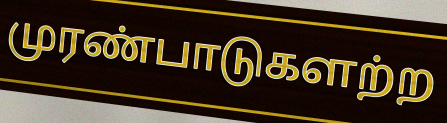
முரண்பாடுகளற்ற